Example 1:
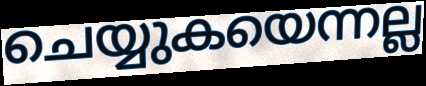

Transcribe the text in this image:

ചെയ്യുകയെന്നല്ല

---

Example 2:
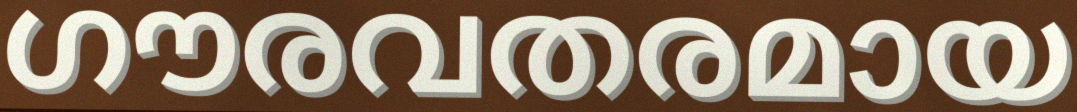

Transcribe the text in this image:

ഗൗരവതരമായ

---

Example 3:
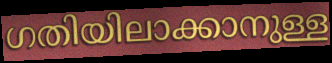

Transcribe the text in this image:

ഗതിയിലാക്കാനുള്ള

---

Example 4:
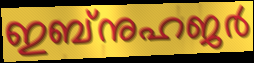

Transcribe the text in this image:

ഇബ്നുഹജർ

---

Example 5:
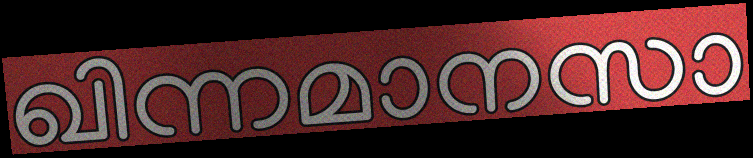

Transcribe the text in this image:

ഖിന്നമാനസാ